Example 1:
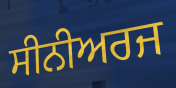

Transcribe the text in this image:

ਸੀਨੀਅਰਜ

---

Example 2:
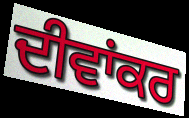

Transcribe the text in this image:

ਦੀਵਾਂਕਰ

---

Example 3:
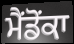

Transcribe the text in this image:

ਮੈਂਡੋਂਕਾ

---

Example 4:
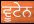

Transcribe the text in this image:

ਵੂਟੇਨ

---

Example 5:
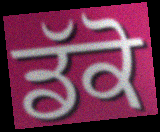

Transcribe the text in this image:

ਡੱਕੋ